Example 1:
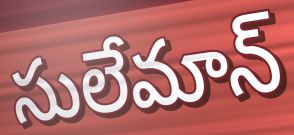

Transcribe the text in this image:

సులేమాన్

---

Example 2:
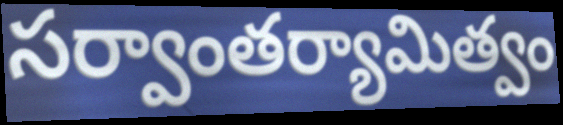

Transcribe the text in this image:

సర్వాంతర్యామిత్వం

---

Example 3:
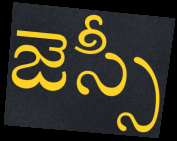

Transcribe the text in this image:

జెస్సీ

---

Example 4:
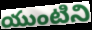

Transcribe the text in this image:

యుంటిని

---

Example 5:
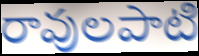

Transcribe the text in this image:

రావులపాటి